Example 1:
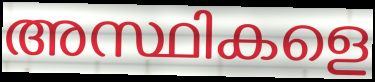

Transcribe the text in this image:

അസ്ഥികളെ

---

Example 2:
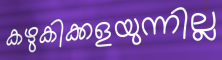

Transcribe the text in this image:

കഴുകിക്കളയുന്നില്ല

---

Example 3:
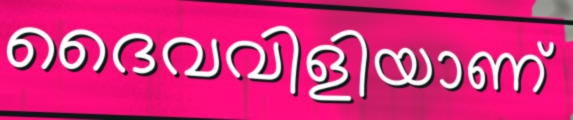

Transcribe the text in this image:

ദൈവവിളിയാണ്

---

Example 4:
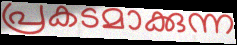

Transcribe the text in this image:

പ്രകടമാക്കുന്ന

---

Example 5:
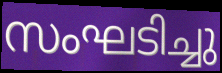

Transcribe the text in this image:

സംഘടിച്ചു